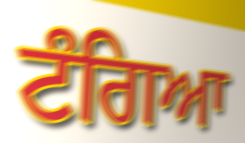
ਟੰਗਿਆ